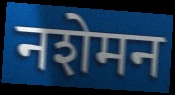
नशेमन